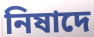
নিষাদে